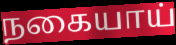
நகையாய்